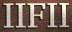
IIFII